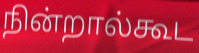
நின்றால்கூட